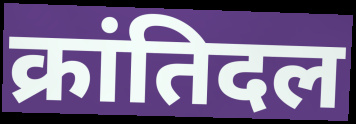
क्रांतिदल